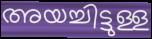
അയച്ചിട്ടുള്ള